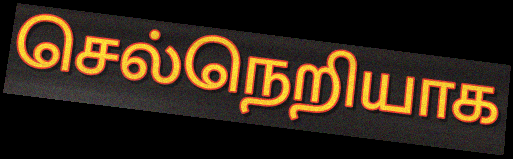
செல்நெறியாக